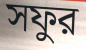
সফুর